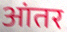
आंतर